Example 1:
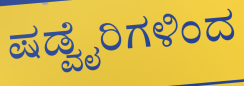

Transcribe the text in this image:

ಷಡ್ವೈರಿಗಳಿಂದ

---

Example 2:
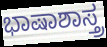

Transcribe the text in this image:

ಭಾಷಾಶಾಸ್ತ್ರ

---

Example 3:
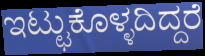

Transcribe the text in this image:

ಇಟ್ಟುಕೊಳ್ಳದಿದ್ದರೆ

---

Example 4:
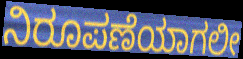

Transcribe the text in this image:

ನಿರೂಪಣೆಯಾಗಲೀ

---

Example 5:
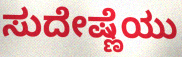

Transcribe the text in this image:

ಸುದೇಷ್ಣೆಯು